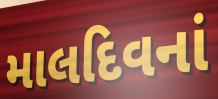
માલદિવનાં